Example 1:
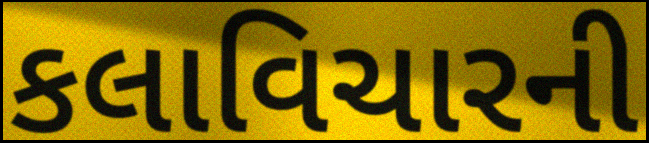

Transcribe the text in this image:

કલાવિચારની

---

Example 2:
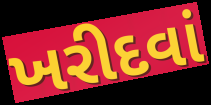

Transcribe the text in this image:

ખરીદવાં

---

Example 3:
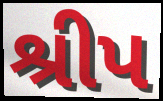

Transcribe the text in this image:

શ્રીપ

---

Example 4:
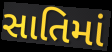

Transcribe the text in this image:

સાતિમાં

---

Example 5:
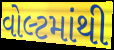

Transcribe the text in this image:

વોલ્ટમાંથી